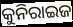
କୁନିରାଇଜ